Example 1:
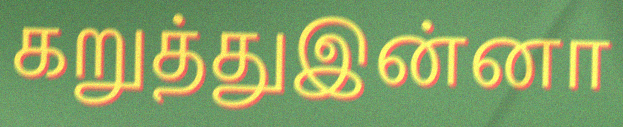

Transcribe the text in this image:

கறுத்துஇன்னா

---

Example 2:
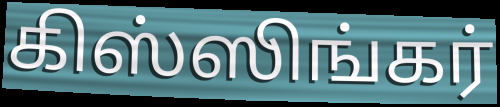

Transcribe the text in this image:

கிஸ்ஸிங்கர்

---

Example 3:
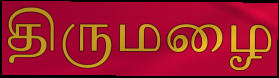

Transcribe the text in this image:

திருமழை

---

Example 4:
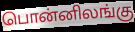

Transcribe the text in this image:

பொன்னிலங்கு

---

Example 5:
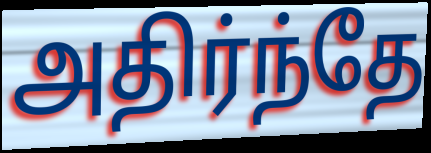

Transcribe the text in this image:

அதிர்ந்தே